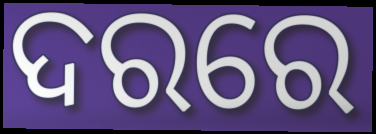
ଦରରେ